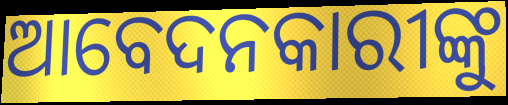
ଆବେଦନକାରୀଙ୍କୁ